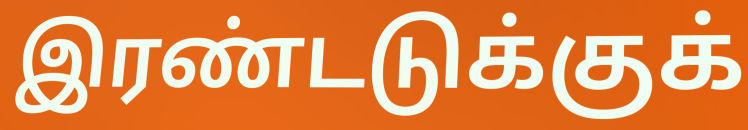
இரண்டடுக்குக்